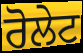
ਰੋਲੇਟ